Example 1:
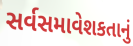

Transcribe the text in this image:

સર્વસમાવેશકતાનું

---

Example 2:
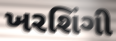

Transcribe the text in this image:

ખરશિંગી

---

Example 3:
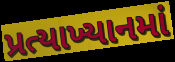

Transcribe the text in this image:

પ્રત્યાખ્યાનમાં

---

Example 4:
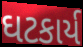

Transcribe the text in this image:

ઘટકાર્ય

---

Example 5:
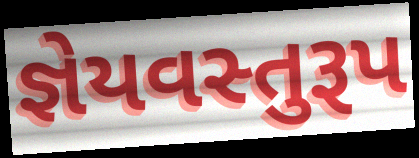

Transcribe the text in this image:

જ્ઞેયવસ્તુરૂપ